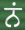
ਨਂ